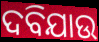
ଦବିଯାଉ